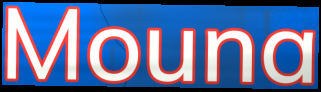
Mouna